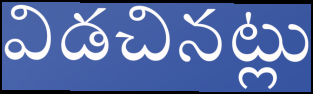
విడచినట్లు